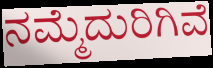
ನಮ್ಮೆದುರಿಗಿವೆ